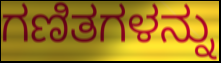
ಗಣಿತಗಳನ್ನು